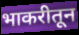
भाकरीतून